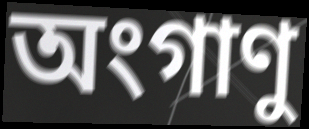
অংগাণু